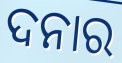
ଦନାର